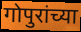
गोपुरांच्या